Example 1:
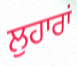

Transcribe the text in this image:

ਲੁਹਾਰਾਂ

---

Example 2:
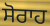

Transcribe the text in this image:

ਸੋਰਾਹ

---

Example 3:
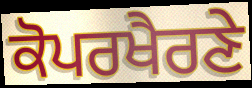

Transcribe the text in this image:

ਕੋਪਰਖੈਰਣੇ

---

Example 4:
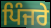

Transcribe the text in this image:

ਪਿੰਜਰੇ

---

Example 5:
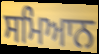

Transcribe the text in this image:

ਸਮਿਆਨ